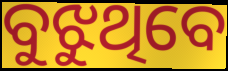
ବୁଝୁଥିବେ